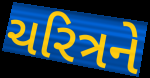
ચરિત્રને